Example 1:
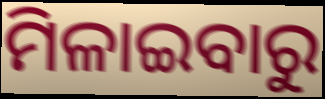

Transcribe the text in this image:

ମିଳାଇବାରୁ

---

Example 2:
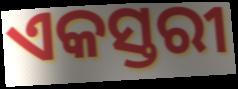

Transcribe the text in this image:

ଏକସ୍ତରୀ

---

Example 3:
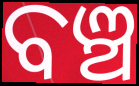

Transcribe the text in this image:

ବଞ୍ଚ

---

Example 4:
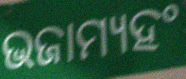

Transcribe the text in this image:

ଭଜାମ୍ୟହଂ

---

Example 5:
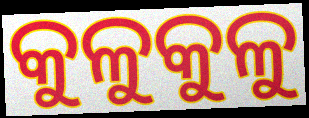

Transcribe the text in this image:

କୁଳୁକୁଳୁ